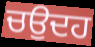
ਚਉਦਹ